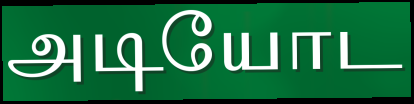
அடியோட